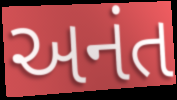
અનંત